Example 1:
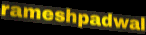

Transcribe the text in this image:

rameshpadwal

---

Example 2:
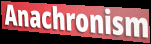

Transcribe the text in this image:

Anachronism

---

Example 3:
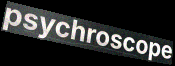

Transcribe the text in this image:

psychroscope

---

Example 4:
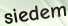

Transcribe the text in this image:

siedem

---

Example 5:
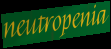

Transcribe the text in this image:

neutropenia